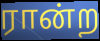
ரான்ற